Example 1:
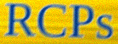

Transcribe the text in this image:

RCPs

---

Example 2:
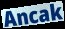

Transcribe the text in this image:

Ancak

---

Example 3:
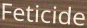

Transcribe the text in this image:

Feticide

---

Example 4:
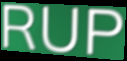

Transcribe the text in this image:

RUP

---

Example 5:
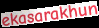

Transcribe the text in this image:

ekasarakhun